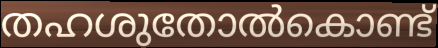
തഹശുതോൽകൊണ്ട്